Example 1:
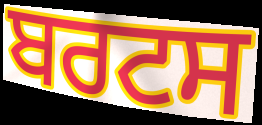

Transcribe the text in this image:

ਬਰਟਸ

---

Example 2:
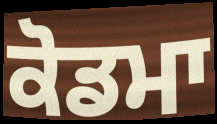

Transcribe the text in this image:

ਕੋਡਮਾ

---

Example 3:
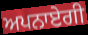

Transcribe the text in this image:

ਅਪਨਾਏਗੀ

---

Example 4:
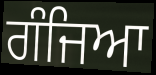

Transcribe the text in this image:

ਗੰਜਿਆ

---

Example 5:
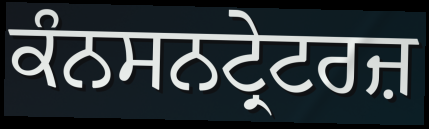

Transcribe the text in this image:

ਕੰਨਸਨਟ੍ਰੇਟਰਜ਼